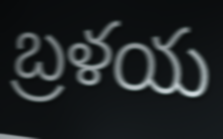
బ్రళయ